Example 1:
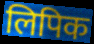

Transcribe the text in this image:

लिपिक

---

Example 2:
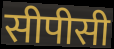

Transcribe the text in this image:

सीपीसी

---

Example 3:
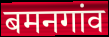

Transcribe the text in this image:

बमनगांव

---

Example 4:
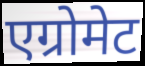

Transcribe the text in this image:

एग्रोमेट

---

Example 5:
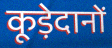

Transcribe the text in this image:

कूड़ेदानों